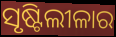
ସୃଷ୍ଟିଲୀଳାର